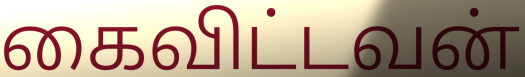
கைவிட்டவன்